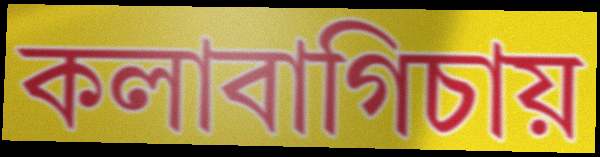
কলাবাগিচায়